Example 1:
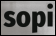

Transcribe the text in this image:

sopi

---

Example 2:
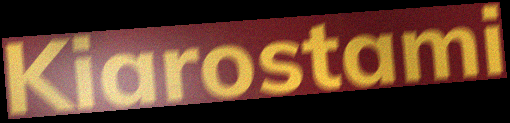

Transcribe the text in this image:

Kiarostami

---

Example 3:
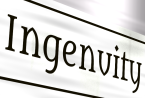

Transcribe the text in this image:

Ingenuity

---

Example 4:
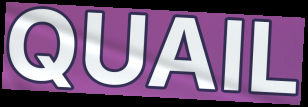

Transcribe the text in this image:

QUAIL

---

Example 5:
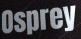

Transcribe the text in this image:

Osprey